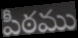
పీఠము